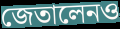
জেতালেনও